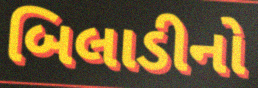
બિલાડીનો